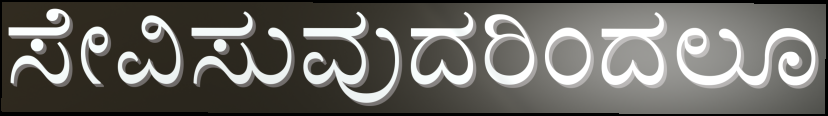
ಸೇವಿಸುವುದರಿಂದಲೂ